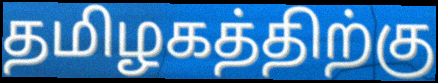
தமிழகத்திற்கு